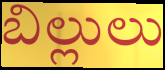
బిల్లులు